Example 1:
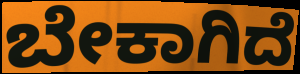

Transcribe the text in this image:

ಬೇಕಾಗಿದೆ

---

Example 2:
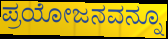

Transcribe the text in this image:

ಪ್ರಯೋಜನವನ್ನೂ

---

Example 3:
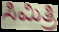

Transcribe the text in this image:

ಸಿಮಿತ್ರಿ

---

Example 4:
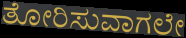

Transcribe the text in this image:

ತೋರಿಸುವಾಗಲೇ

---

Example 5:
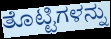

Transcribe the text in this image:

ತೊಟ್ಟಿಗಳನ್ನು